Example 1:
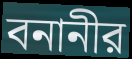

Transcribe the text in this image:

বনানীর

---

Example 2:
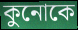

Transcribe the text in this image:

কুনোকে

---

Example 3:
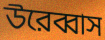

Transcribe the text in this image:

উরেব্বাস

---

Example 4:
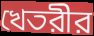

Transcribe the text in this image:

খেতরীর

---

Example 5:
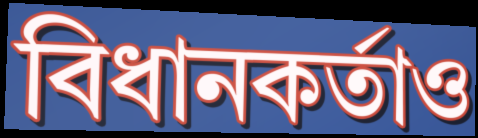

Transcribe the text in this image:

বিধানকর্তাও